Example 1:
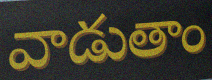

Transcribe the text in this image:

వాడుతాం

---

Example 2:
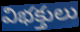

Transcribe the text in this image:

విభక్తులు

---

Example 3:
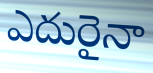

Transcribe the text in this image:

ఎదురైనా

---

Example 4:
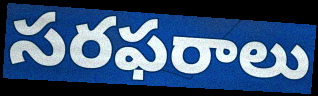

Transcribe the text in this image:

సరఫరాలు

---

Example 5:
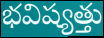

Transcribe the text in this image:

భవిష్యత్తు